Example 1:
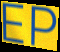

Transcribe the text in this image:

EP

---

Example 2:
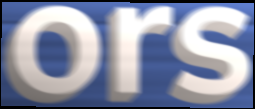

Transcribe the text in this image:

ors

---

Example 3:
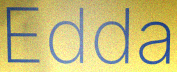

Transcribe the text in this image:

Edda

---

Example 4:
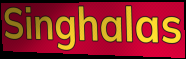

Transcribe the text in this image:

Singhalas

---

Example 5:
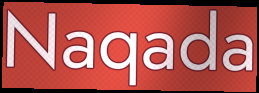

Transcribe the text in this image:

Naqada